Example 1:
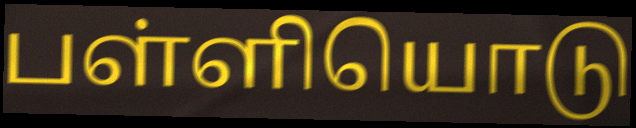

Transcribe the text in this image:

பள்ளியொடு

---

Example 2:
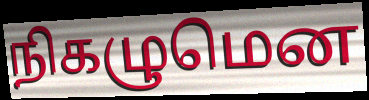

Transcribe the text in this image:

நிகழுமென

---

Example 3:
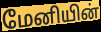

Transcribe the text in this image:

மேனியின்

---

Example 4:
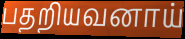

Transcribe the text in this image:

பதறியவனாய்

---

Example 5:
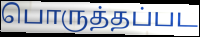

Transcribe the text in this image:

பொருத்தப்பட